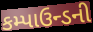
કમ્પાઉન્ડની